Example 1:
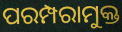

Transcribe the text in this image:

ପରମ୍ପରାମୁକ୍ତ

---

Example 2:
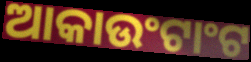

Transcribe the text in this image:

ଆକାଉଂଟାଂଟ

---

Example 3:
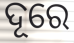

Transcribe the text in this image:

ଦୂରେ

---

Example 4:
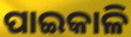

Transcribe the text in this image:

ପାଇକାଳି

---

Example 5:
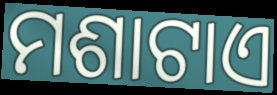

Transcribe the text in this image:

ମଶାଟାଏ